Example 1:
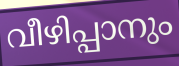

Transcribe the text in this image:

വീഴിപ്പാനും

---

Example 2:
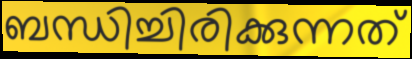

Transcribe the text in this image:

ബന്ധിച്ചിരിക്കുന്നത്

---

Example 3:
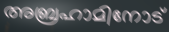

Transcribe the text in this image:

അബ്രഹാമിനോട്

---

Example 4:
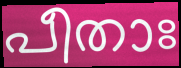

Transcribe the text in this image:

പീതാഃ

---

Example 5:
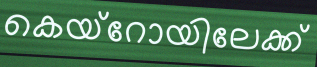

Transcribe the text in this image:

കെയ്റോയിലേക്ക്